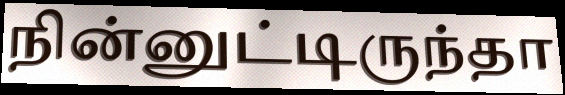
நின்னுட்டிருந்தா